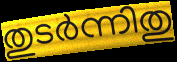
തുടർന്നിതു